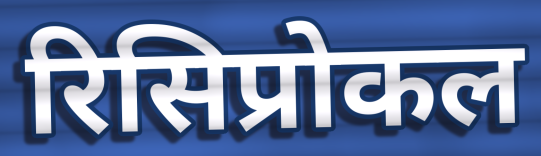
रिसिप्रोकल